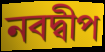
নবদ্বীপ